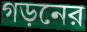
গড়নের